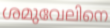
ശമുവേലിനെ